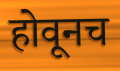
होवूनच